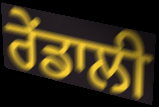
ਰੇਂਡਾਲੀ